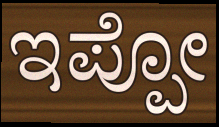
ಇಪ್ಪೋ